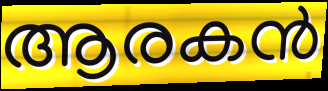
ആരകൻ